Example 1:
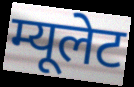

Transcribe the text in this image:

म्यूलेट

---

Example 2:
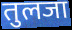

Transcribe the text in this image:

तुलजा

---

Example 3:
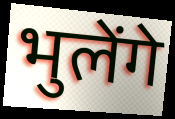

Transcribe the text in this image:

भुलेंगे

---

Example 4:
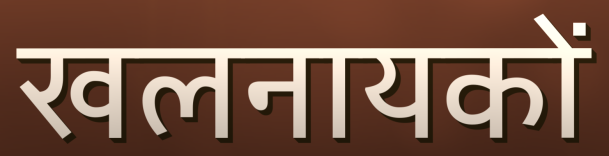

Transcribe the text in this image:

खलनायकों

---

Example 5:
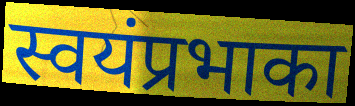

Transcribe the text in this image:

स्वयंप्रभाका